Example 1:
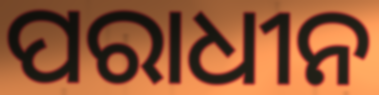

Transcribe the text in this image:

ପରାଧୀନ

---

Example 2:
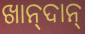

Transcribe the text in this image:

ଖାନ୍‍ଦାନ୍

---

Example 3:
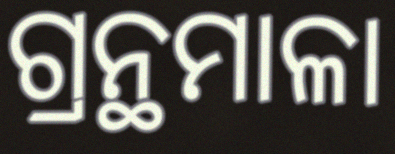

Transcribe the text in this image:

ଗ୍ରନ୍ଥମାଳା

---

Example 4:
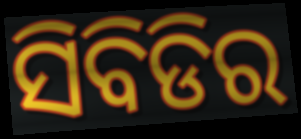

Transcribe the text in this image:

ସିବିଡିର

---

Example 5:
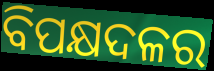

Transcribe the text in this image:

ବିପକ୍ଷଦଳର